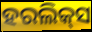
ହରଲିକ୍‌ସ